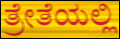
ತ್ರೇತೆಯಲ್ಲಿ